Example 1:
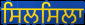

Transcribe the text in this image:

ਸਿਲਸਿਲਾ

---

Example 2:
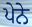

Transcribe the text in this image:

ਪੇਨੇ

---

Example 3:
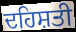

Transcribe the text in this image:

ਦਹਿਸ਼ਤੀ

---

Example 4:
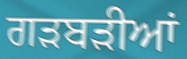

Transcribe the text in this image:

ਗੜਬੜੀਆਂ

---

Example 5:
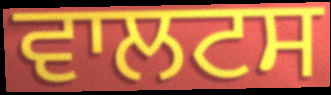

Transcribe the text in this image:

ਵਾਲਟਸ